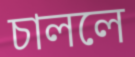
চাললে